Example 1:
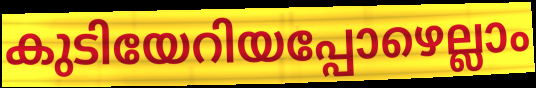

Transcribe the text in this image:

കുടിയേറിയപ്പോഴെല്ലാം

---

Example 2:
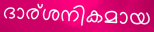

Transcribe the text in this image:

ദാര്ശനികമായ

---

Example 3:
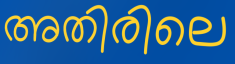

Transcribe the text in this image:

അതിരിലെ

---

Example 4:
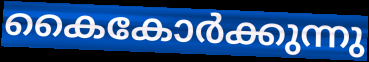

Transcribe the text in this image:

കൈകോർക്കുന്നു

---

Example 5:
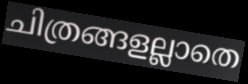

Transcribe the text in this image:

ചിത്രങ്ങളല്ലാതെ